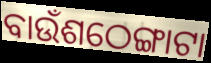
ବାଉଁଶଠେଙ୍ଗାଟା